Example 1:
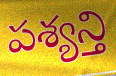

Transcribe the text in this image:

పశ్యన్తి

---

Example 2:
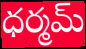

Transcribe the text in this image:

ధర్మమ్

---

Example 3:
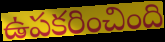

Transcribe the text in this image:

ఉపకరించింది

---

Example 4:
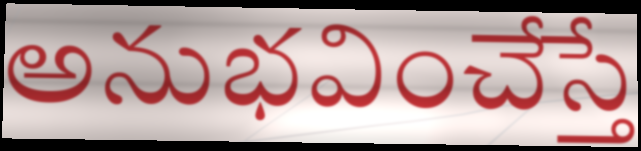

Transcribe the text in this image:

అనుభవించేస్తే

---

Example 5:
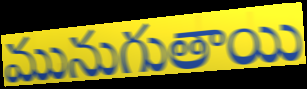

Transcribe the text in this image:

మునుగుతాయి